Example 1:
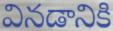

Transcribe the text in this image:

వినడానికి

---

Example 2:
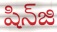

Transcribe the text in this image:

షిన్‌జి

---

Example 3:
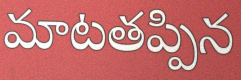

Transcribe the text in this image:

మాటతప్పిన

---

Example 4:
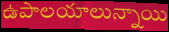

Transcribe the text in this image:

ఉపాలయాలున్నాయి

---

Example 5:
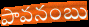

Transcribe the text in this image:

పావనంబు